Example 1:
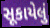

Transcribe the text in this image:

સૂકાયેલું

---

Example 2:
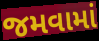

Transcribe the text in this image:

જમવામાં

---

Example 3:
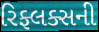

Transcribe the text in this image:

રિફ્લક્સની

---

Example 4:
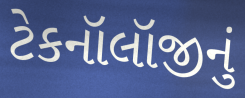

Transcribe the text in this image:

ટેકનૉલૉજીનું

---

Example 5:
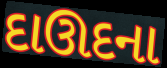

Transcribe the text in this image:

દાઊદના